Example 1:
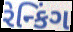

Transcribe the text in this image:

રેન્કિંગ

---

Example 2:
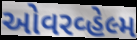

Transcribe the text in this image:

ઓવરવ્હેલ્મ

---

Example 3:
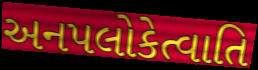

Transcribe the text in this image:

અનપલોકેત્વાતિ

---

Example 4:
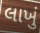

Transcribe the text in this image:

લાખું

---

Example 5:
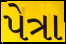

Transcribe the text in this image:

પેત્રા